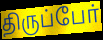
திருப்பேர்